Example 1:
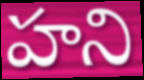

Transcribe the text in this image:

హని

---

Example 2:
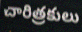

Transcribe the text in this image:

చారిత్రకులు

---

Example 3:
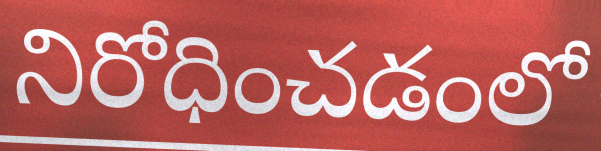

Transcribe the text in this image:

నిరోధించడంలో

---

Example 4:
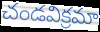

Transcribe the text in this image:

చండవిక్రమా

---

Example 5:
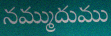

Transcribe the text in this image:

నమ్ముదుము